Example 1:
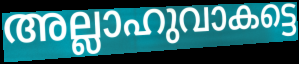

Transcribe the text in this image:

അല്ലാഹുവാകട്ടെ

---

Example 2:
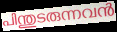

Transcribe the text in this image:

പിന്തുടരുന്നവൻ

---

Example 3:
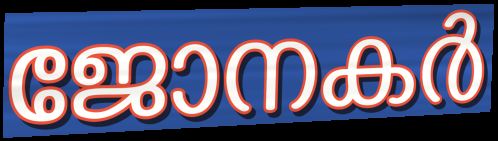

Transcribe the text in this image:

ജോനകർ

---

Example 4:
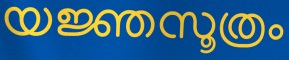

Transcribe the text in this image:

യജ്ഞസൂത്രം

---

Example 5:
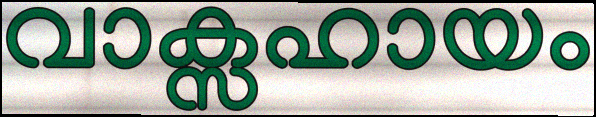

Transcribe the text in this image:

വാക്സഹായം